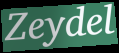
Zeydel